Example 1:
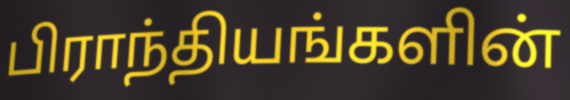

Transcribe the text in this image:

பிராந்தியங்களின்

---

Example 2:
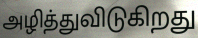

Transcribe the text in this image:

அழித்துவிடுகிறது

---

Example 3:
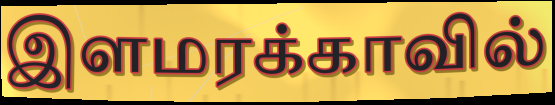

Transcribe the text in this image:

இளமரக்காவில்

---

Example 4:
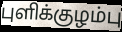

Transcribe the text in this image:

புளிக்குழம்பு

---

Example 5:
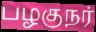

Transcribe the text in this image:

பழகுநர்